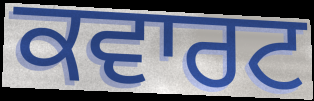
ਕਵਾਰਟ